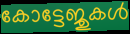
കോട്ടേജുകൾ